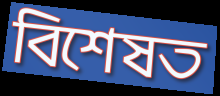
বিশেষত